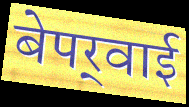
बेपर्वाई